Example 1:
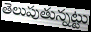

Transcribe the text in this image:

తెలుపుతున్నట్టు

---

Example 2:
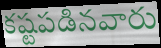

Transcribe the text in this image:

కష్టపడినవారు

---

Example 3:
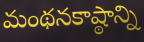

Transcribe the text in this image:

మంథనకాష్ఠాన్ని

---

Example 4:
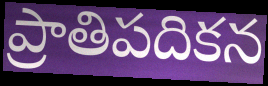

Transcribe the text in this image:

ప్రాతిపదికన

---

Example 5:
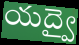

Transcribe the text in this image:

యద్వై